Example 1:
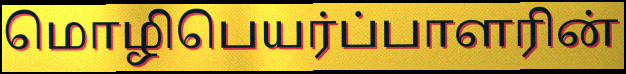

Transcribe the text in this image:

மொழிபெயர்ப்பாளரின்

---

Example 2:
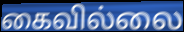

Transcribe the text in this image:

கைவில்லை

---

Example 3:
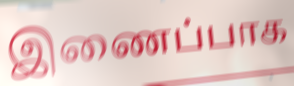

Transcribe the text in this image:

இணைப்பாக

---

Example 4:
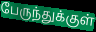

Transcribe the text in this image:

பேருந்துக்குள்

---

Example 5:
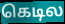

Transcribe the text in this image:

கெடில